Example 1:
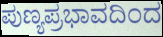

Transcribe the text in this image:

ಪುಣ್ಯಪ್ರಭಾವದಿಂದ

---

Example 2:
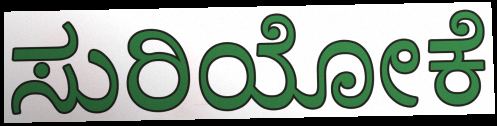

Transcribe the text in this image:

ಸುರಿಯೋಕೆ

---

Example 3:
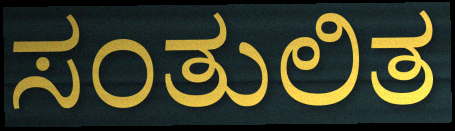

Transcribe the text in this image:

ಸಂತುಲಿತ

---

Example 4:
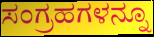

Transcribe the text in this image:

ಸಂಗ್ರಹಗಳನ್ನೂ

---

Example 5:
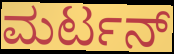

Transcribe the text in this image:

ಮರ್ಟನ್